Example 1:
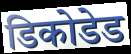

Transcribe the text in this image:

डिकोडेड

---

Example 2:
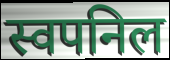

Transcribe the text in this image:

स्वपनिल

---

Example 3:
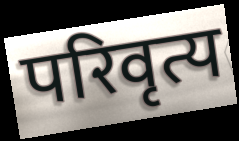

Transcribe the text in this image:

परिवृत्य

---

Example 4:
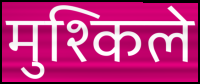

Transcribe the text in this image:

मुश्किले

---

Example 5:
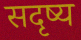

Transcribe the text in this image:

सदृष्य